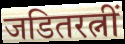
जडितरत्नीं